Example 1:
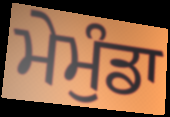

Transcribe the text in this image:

ਮੇਮੁੰਡਾ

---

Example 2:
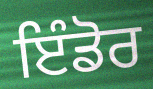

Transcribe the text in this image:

ਇੰਡੋਰ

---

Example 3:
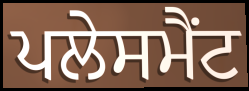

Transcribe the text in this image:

ਪਲੇਸਮੈਂਟ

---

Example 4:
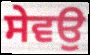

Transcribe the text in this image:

ਸੇਵਉ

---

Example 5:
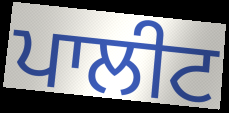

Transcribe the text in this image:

ਪਾਲੀਟ